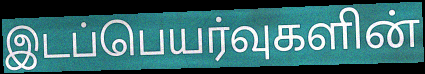
இடப்பெயர்வுகளின்